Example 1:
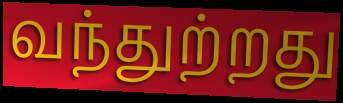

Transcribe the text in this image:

வந்துற்றது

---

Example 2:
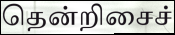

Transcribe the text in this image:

தென்றிசைச்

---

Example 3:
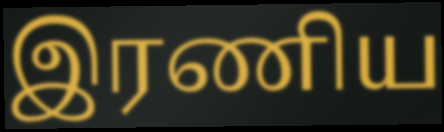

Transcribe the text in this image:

இரணிய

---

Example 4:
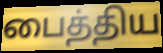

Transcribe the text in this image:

பைத்திய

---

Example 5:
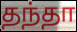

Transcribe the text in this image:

தந்தா